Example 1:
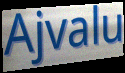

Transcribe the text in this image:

Ajvalu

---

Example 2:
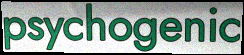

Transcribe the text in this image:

psychogenic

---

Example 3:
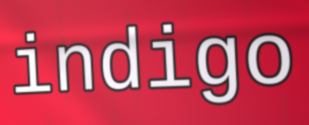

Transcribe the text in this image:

indigo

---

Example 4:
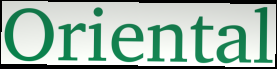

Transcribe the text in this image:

Oriental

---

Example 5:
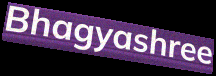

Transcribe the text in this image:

Bhagyashree